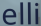
elli